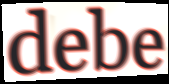
debe